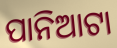
ପାନିଆଟା